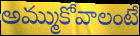
అమ్ముకోవాలంటే